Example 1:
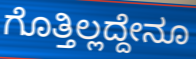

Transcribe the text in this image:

ಗೊತ್ತಿಲ್ಲದ್ದೇನೂ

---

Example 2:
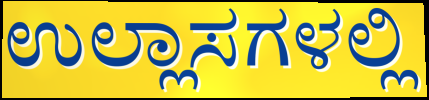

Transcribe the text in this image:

ಉಲ್ಲಾಸಗಳಲ್ಲಿ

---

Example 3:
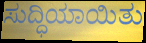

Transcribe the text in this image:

ಸುದ್ಧಿಯಾಯಿತು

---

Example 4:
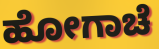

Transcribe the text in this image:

ಹೋಗಾಚೆ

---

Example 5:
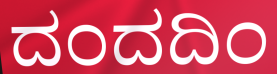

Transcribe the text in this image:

ದಂದದಿಂ